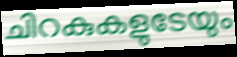
ചിറകുകളുടേയും